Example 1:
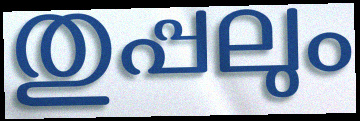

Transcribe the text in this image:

തുപ്പലും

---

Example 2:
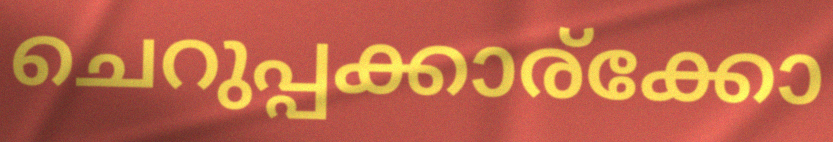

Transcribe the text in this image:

ചെറുപ്പക്കാര്ക്കോ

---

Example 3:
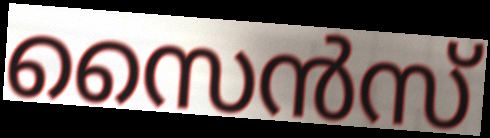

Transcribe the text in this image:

സൈൻസ്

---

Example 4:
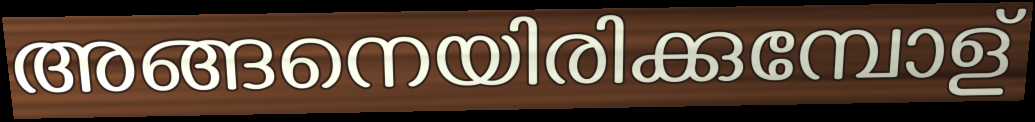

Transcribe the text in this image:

അങ്ങനെയിരിക്കുമ്പോള്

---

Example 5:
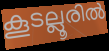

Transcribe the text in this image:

കൂടല്ലൂരിൽ